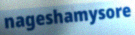
nageshamysore